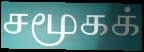
சமூகக்